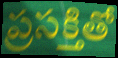
ప్రసక్తితో